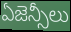
ఏజెన్సీలు